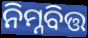
ନିମ୍ନବିତ୍ତ